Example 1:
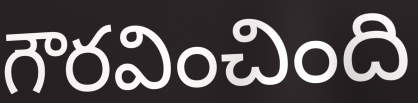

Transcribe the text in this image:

గౌరవించింది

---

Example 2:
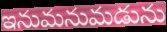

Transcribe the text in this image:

ఇనుమనుమడును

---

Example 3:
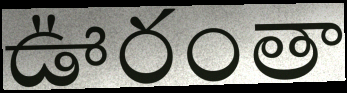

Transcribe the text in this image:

ఊరంతా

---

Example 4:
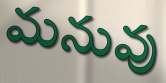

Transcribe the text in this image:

మనువు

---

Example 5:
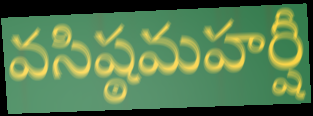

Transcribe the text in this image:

వసిష్ఠమహర్షీ